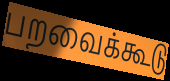
பறவைக்கூடு